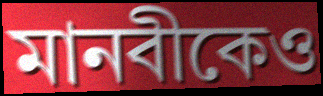
মানবীকেও